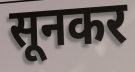
सूनकर